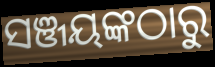
ସଞ୍ଜୟଙ୍କଠାରୁ